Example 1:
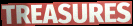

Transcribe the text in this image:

TREASURES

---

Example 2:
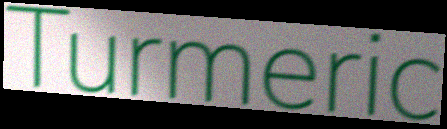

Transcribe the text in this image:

Turmeric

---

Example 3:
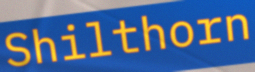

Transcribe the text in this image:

Shilthorn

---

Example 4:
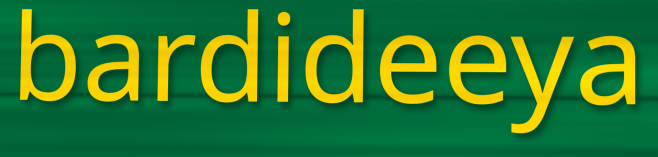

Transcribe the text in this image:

bardideeya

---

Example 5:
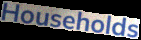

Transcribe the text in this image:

Households